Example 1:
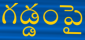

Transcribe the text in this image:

గడ్డంపై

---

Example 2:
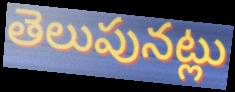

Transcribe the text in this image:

తెలుపునట్లు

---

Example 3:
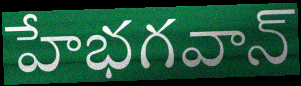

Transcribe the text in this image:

హేభగవాన్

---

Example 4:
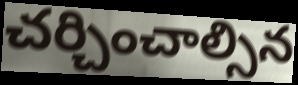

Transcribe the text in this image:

చర్చించాల్సిన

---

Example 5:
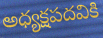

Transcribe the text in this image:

అధ్యక్షపదవికి